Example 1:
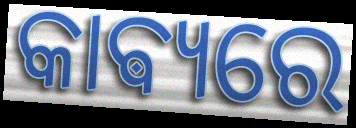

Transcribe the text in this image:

କାଵ୍ଯରେ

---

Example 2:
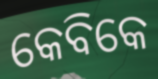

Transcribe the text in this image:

କେବିକେ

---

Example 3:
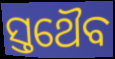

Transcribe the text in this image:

ସ୍ତଥୈବ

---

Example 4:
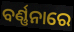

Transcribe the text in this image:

ବର୍ଣ୍ଣନାରେ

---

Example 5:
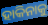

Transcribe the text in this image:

ହାକିନାକୁ